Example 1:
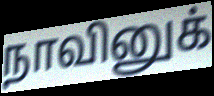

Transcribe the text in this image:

நாவினுக்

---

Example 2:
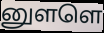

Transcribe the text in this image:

னுளளெ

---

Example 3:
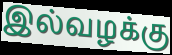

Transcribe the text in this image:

இல்வழக்கு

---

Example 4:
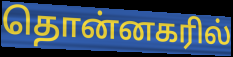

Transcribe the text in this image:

தொன்னகரில்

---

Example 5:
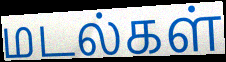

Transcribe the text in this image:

மடல்கள்